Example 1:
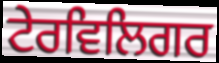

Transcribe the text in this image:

ਟੇਰਵਿਲਿਗਰ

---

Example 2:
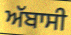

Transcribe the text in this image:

ਅੱਬਾਸੀ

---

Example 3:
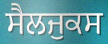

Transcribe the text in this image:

ਸੈਲਜੁਕਸ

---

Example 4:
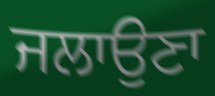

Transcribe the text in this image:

ਜਲਾਉਣਾ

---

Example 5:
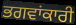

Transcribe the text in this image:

ਭਗਵਾਂਕਾਰੀ